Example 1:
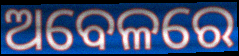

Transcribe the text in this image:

ଅବେଳରେ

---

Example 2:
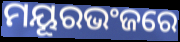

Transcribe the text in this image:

ମୟୂରଭଂଜରେ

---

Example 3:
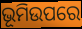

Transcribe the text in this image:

ଭୂମିଉପରେ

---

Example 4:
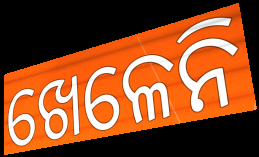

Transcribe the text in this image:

ଖେଳେନି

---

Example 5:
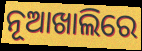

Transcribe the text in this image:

ନୂଆଖାଲିରେ